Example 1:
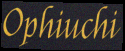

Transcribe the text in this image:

Ophiuchi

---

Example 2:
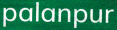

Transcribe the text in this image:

palanpur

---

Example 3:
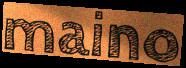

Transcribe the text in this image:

maino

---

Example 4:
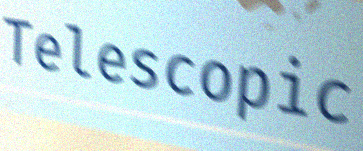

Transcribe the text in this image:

Telescopic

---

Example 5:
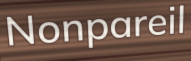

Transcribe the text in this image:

Nonpareil